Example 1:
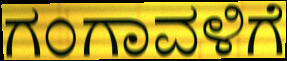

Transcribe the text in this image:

ಗಂಗಾವಳಿಗೆ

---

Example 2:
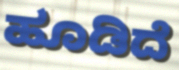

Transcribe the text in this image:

ಹೂಡಿದೆ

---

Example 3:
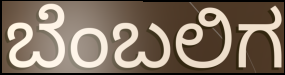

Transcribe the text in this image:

ಬೆಂಬಲಿಗ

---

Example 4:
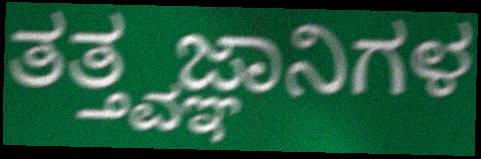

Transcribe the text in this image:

ತತ್ತ್ವಜ್ಞಾನಿಗಳ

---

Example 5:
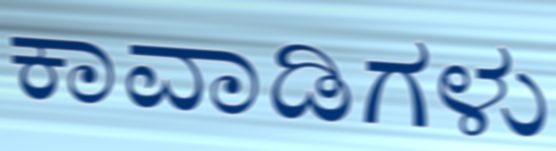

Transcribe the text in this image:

ಕಾವಾಡಿಗಳು